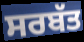
ਸਰਬੱਤ